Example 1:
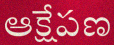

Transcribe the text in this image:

ఆక్షేపణ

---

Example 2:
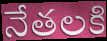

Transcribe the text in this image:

నేతలకి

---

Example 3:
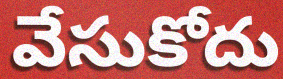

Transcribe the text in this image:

వేసుకోదు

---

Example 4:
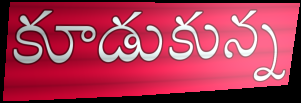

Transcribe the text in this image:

కూడుకున్న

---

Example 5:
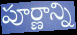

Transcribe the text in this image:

పూర్ణాన్ని